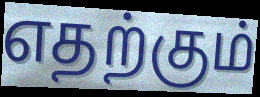
எதற்கும்